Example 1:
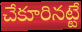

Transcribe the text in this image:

చేకూరినట్టే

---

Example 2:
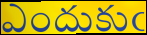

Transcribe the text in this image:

ఎందుకుఁ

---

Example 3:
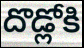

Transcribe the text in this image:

దొడ్లోకి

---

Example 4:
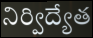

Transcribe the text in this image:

నిర్విద్యేత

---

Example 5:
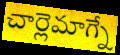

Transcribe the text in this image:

చార్లెమాగ్నే